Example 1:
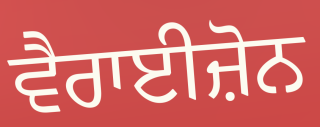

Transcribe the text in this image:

ਵੈਰਾਈਜ਼ੋਨ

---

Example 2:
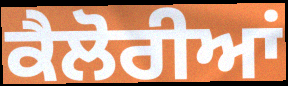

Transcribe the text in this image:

ਕੈਲੋਰੀਆਂ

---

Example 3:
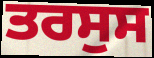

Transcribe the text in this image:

ਤਰਸੁਸ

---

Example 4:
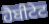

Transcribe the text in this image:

ਹੈਬੀਟੇਟ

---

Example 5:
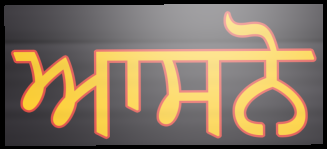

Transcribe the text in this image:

ਆਸਨੋ